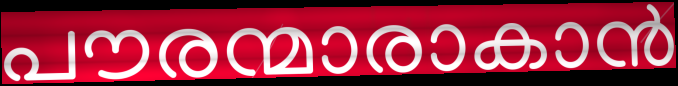
പൗരന്മാരാകാൻ